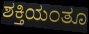
ಶಕ್ತಿಯಂತೂ